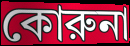
কোরুনা